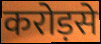
करोड़से